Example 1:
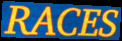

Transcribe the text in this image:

RACES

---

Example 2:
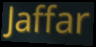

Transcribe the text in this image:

Jaffar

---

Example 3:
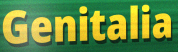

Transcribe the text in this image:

Genitalia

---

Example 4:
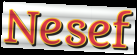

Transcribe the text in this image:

Nesef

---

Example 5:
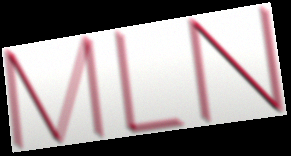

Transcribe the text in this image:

MLN